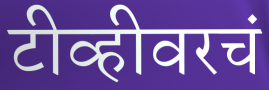
टीव्हीवरचं